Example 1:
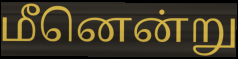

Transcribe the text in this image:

மீனென்று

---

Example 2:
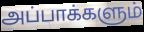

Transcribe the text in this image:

அப்பாக்களும்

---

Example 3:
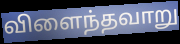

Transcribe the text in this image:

விளைந்தவாறு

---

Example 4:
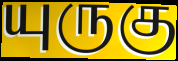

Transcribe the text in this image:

யுருகு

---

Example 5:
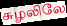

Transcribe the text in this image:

சுழலிலே